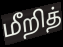
மீறித்